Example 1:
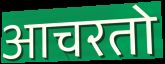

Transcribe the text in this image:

आचरतो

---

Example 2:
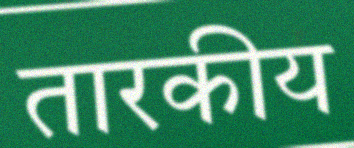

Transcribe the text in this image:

तारकीय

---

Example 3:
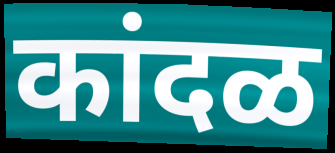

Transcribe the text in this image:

कांदळ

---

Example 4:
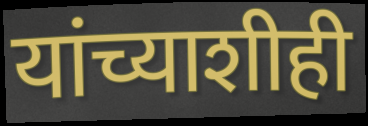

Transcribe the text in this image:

यांच्याशीही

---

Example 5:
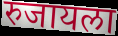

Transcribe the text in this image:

रुजायला